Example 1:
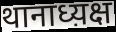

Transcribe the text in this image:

थानाध्य़क्ष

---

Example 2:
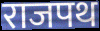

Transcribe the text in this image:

राजपथ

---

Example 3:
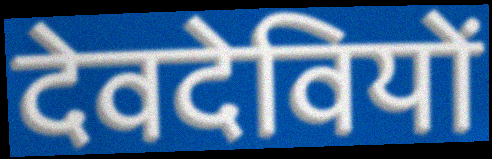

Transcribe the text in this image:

देवदेवियों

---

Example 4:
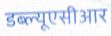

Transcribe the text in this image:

डब्ल्यूएसीआर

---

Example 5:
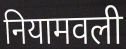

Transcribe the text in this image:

नियामवली